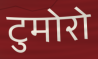
टुमोरो